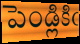
పెండ్లికిఁ